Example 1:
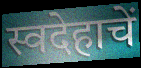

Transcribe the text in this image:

स्वदेहाचें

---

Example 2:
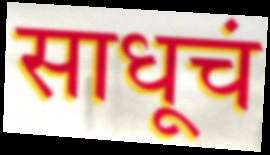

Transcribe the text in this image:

साधूचं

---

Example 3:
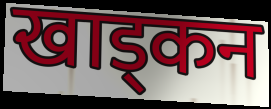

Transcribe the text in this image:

खाड्कन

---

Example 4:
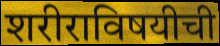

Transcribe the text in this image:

शरीराविषयीची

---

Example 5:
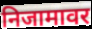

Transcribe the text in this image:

निजामावर